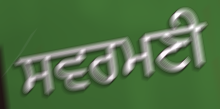
ਸਵਰਮਣੀ